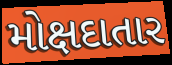
મોક્ષદાતાર